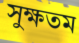
সুক্ষতম